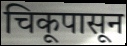
चिकूपासून